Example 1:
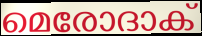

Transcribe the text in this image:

മെരോദാക്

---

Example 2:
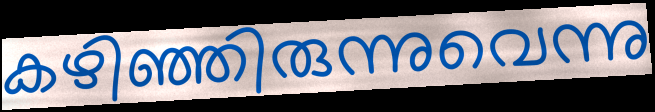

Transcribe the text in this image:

കഴിഞ്ഞിരുന്നുവെന്നു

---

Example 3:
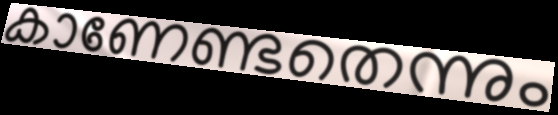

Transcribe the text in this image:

കാണേണ്ടതെന്നും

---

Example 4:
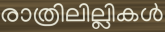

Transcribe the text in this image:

രാത്രിലില്ലികൾ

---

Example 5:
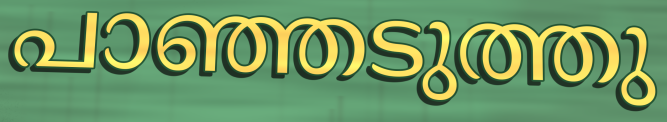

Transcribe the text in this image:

പാഞ്ഞടുത്തു